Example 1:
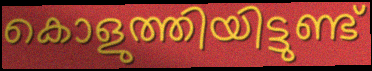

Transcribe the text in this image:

കൊളുത്തിയിട്ടുണ്ട്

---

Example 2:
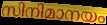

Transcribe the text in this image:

സിനിമാനയം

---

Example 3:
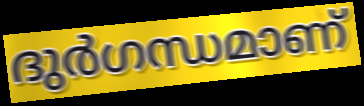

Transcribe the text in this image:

ദുർഗന്ധമാണ്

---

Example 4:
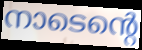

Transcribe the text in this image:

നാടെന്റെ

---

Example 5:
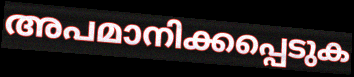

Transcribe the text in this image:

അപമാനിക്കപ്പെടുക